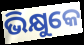
ଭିକ୍ଷୁକେ